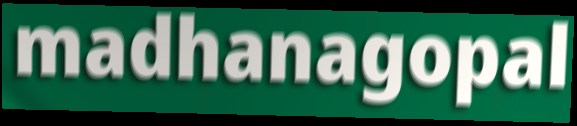
madhanagopal